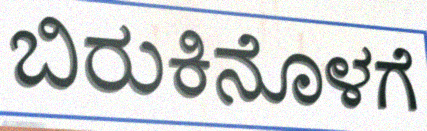
ಬಿರುಕಿನೊಳಗೆ